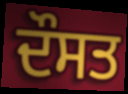
ਦੌਸਤ